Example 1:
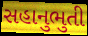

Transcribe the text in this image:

સહાનુભુતી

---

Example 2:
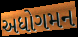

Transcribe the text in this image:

અધોગમન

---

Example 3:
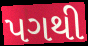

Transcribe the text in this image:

પગથી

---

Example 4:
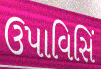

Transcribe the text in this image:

ઉપાવિસિં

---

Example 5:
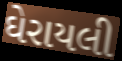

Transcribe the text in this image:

ઘેરાયલી